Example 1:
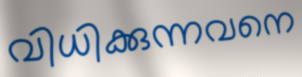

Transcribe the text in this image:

വിധിക്കുന്നവനെ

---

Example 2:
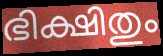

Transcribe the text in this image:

ഭിക്ഷിതും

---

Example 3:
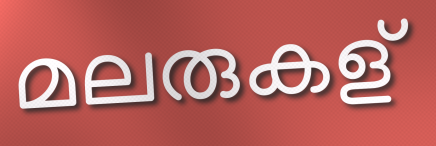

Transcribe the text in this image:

മലരുകള്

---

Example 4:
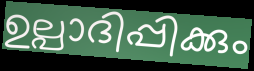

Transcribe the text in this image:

ഉല്പാദിപ്പിക്കും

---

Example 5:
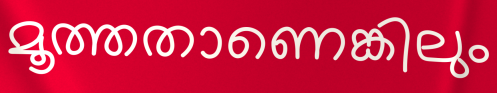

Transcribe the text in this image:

മൂത്തതാണെങ്കിലും